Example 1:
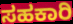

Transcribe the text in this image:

ಸಹಕಾರಿ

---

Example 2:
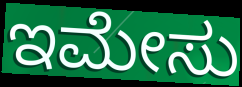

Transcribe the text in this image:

ಇಮೇಸು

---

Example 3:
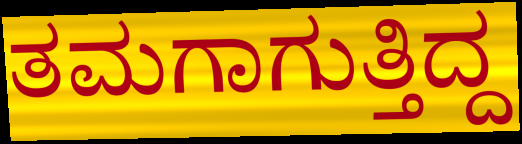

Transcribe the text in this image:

ತಮಗಾಗುತ್ತಿದ್ದ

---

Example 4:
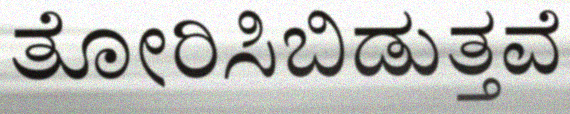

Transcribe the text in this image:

ತೋರಿಸಿಬಿಡುತ್ತವೆ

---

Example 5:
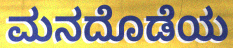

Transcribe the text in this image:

ಮನದೊಡೆಯ